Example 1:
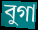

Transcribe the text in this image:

বুগা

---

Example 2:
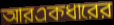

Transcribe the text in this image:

আরএকধারের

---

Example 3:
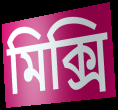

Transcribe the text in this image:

মিক্সি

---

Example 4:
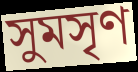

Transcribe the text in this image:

সুমসৃণ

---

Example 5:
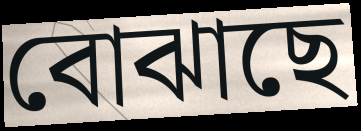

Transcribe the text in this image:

বোঝাছে